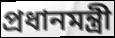
প্রধানমন্ত্রী